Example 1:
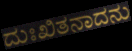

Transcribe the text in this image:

ದುಃಖಿತನಾದನು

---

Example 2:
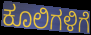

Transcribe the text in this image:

ಕೂಲಿಗಳಿಗೆ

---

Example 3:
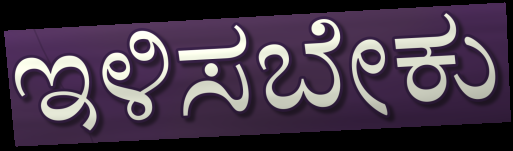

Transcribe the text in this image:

ಇಳಿಸಬೇಕು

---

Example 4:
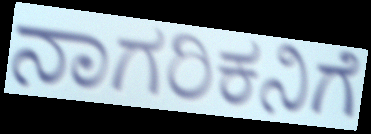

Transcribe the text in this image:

ನಾಗರಿಕನಿಗೆ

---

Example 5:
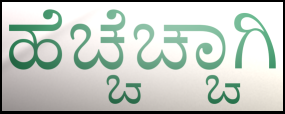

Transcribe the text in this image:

ಹೆಚ್ಚೆಚ್ಚಾಗಿ